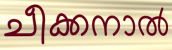
ചീക്കനാൽ